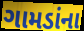
ગામડાંના